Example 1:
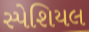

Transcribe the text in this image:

સ્પેશિયલ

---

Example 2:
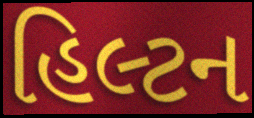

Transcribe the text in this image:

હિલ્ટન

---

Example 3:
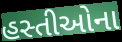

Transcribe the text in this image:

હસ્તીઓના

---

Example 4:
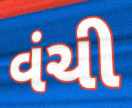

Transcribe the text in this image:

વંચી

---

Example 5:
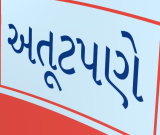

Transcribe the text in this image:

અતૂટપણે